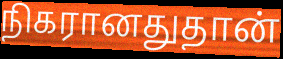
நிகரானதுதான்